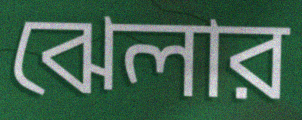
ঝেলার